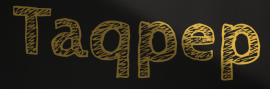
Taqpep